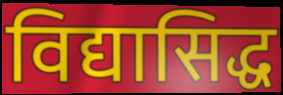
विद्यासिद्ध